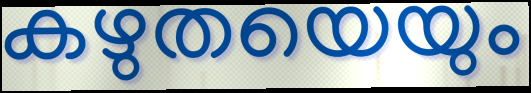
കഴുതയെയും